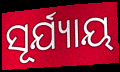
ସୂର୍ଯ୍ୟାୟ